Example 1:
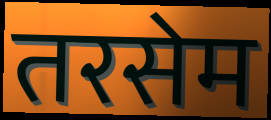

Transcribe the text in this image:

तरसेम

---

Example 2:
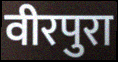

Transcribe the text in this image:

वीरपुरा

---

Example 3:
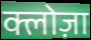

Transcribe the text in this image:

क्लोज़ा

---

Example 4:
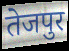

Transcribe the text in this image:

तेजपुर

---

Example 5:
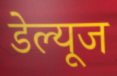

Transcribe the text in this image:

डेल्यूज